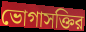
ভোগাসক্তির